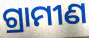
ଗ୍ରାମୀଣ